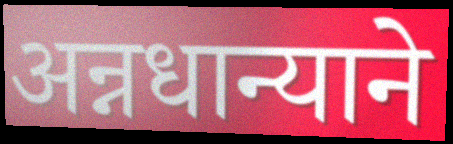
अन्नधान्याने